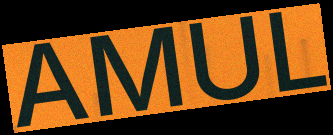
AMUL